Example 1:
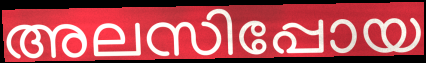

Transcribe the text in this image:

അലസിപ്പോയ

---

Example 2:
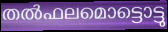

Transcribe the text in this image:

തൽഫലമൊട്ടൊട്ടു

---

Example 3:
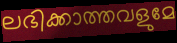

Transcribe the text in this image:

ലഭിക്കാത്തവളുമേ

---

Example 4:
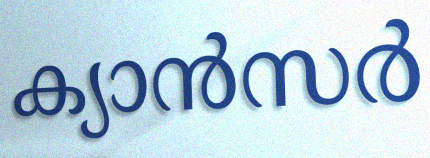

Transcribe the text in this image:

ക്യാൻസർ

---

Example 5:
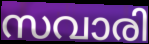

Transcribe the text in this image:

സവാരി